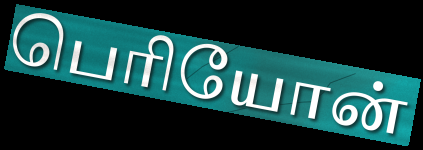
பெரியோன்